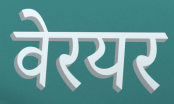
वेरयर